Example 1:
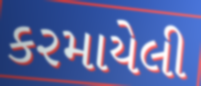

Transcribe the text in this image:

કરમાયેલી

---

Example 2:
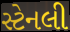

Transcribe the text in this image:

સ્ટેનલી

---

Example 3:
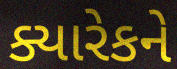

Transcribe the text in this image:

ક્યારેકને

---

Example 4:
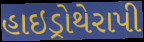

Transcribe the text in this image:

હાઇડ્રોથેરાપી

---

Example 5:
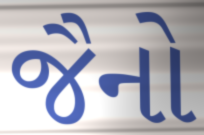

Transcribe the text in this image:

જૈનો